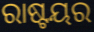
ରାଷ୍ଟୟର